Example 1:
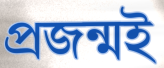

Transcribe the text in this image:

প্রজন্মই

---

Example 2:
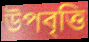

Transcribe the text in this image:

উপবৃত্তি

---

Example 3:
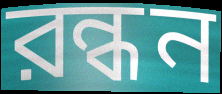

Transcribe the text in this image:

রন্ধন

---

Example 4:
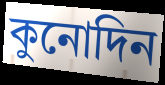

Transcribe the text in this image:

কুনোদিন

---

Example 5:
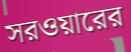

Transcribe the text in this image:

সরওয়ারের